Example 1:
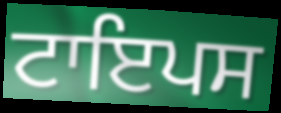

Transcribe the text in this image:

ਟਾਇਪਸ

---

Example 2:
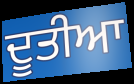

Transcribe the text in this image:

ਦੂਤੀਆ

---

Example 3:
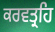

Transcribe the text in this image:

ਕਰਵਤ੍ਰਹਿ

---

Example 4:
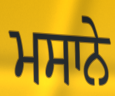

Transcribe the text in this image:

ਮਸਾਨੇ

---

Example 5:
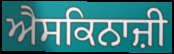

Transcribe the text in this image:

ਐਸਕਿਨਾਜ਼ੀ